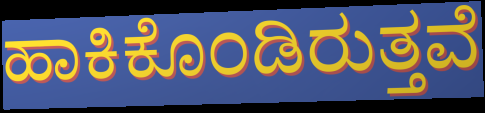
ಹಾಕಿಕೊಂಡಿರುತ್ತವೆ